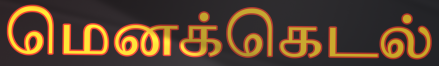
மெனக்கெடல்